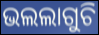
ଭଲଲାଗୁଚି